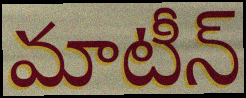
మాటీన్